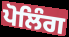
ਪੋਲਿੰਗ